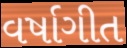
વર્ષાગીત